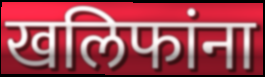
खलिफांना